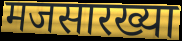
मजसारख्या